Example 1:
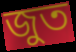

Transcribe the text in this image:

জুত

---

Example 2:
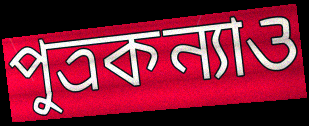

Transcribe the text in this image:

পুত্রকন্যাও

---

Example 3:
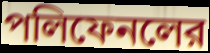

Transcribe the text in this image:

পলিফেনলের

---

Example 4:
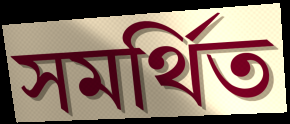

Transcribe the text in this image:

সমর্থিত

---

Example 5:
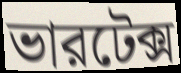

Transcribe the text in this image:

ভারটেক্স